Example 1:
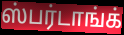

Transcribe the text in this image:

ஸ்பர்டாங்க்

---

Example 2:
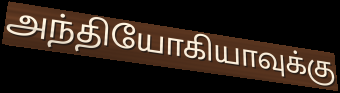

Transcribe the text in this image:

அந்தியோகியாவுக்கு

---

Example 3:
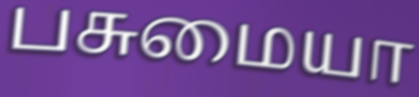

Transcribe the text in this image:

பசுமையா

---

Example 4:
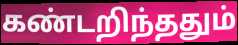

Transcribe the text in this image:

கண்டறிந்ததும்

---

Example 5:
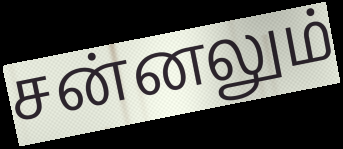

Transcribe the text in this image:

சன்னலும்